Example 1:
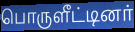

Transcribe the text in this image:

பொருளீட்டினர்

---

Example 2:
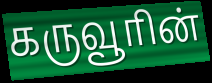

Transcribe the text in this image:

கருவூரின்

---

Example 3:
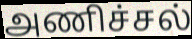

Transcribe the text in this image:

அணிச்சல்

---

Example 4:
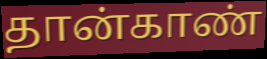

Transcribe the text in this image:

தான்காண்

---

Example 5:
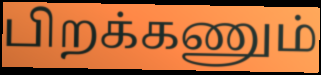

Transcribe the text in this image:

பிறக்கணும்